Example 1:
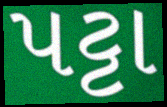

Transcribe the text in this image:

પટ્ટા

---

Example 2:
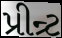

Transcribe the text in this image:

પ્રીન્ર્ટ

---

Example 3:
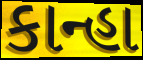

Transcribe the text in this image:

કાન્હા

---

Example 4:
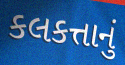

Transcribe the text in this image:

કલકત્તાનું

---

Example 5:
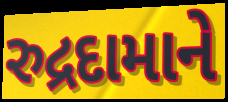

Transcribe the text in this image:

રુદ્રદામાને